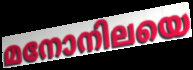
മനോനിലയെ